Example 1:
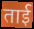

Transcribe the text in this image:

ताई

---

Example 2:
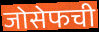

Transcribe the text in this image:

जोसेफची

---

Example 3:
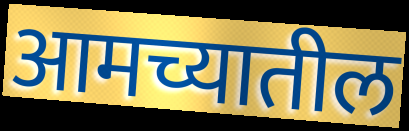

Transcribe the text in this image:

आमच्यातील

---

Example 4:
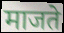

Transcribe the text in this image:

माजते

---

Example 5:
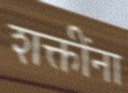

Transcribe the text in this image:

शक्तींना